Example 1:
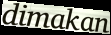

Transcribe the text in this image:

dimakan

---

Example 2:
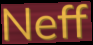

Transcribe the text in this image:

Neff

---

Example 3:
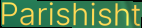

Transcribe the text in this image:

Parishisht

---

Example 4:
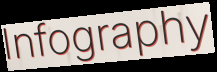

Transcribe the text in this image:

Infography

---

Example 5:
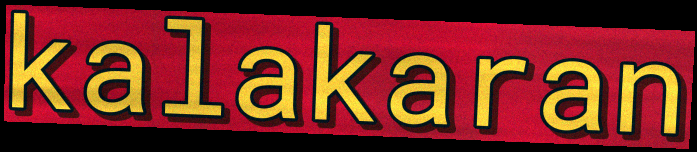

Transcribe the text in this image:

kalakaran